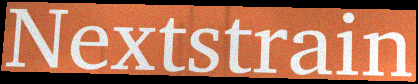
Nextstrain